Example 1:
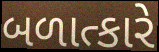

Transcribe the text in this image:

બળાત્કારે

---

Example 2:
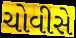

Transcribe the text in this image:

ચોવીસે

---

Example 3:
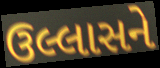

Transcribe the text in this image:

ઉલ્લાસને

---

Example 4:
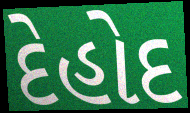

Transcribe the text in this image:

દેહોદ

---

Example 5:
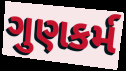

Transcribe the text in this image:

ગુણકર્મ